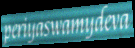
periyaswamydeva